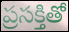
ప్రసక్తితో